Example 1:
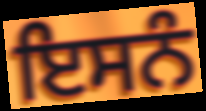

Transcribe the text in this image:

ਇਸਨੰ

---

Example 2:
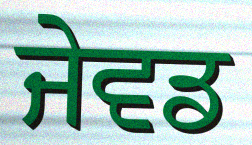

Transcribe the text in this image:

ਜੇਵਡ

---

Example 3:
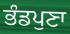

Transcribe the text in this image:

ਭੰਡਪੁਣਾ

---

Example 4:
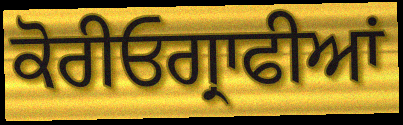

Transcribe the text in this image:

ਕੋਰੀਓਗ੍ਰਾਫੀਆਂ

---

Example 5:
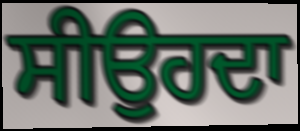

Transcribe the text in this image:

ਸੀਉਹਦਾ